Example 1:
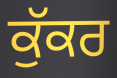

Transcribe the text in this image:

ਕੁੱਕਰ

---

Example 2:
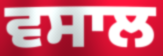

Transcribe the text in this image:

ਵਸਾਲ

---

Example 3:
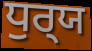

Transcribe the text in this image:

ਧੁਰ੍‍ਯ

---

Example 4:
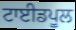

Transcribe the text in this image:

ਟਾਈਡਪੂਲ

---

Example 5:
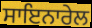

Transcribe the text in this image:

ਸਾਇਨਾਰੇਲ